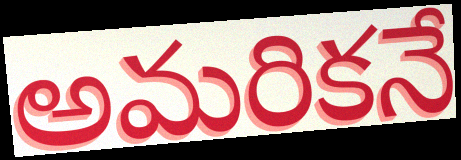
అమరికనే